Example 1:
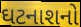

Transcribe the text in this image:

ઘટનાશનો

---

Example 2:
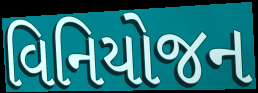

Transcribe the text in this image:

વિનિયોજન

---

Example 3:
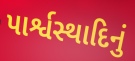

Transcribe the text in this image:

પાર્શ્વસ્થાદિનું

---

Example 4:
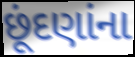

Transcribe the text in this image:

છૂંદણાંના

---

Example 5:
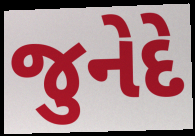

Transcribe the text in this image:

જુનેદે